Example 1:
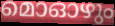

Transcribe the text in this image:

മൊഓഴും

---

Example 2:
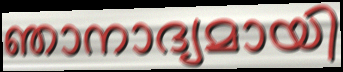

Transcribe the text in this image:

ഞാനാദ്യമായി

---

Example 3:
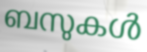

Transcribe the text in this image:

ബസുകൾ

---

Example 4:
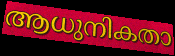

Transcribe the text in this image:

ആധുനികതാ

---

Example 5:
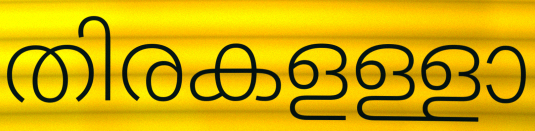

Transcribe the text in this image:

തിരകളള്ളാ